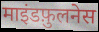
माइंडफ़ुलनेस